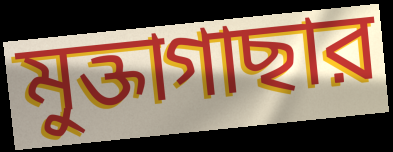
মুক্তাগাছার